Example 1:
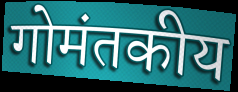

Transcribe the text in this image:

गोमंतकीय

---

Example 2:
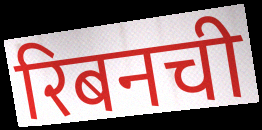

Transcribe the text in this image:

रिबनची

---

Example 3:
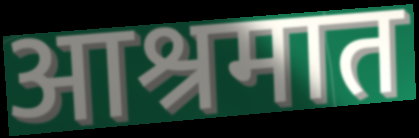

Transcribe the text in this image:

आश्रमात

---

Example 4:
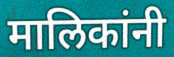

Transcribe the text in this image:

मालिकांनी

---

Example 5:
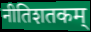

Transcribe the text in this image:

नीतिशतकम्